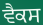
ਵੈਕਸ